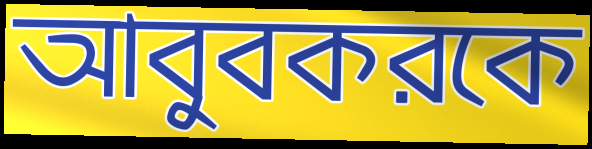
আবুবকরকে